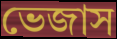
ভেজাস